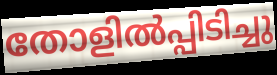
തോളിൽപ്പിടിച്ചു